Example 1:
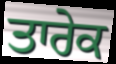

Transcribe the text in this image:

ਤਾਰੇਕ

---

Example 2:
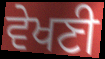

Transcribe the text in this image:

ਵੇਖਣੀ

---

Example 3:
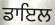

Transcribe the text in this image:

ਡਾਇਲ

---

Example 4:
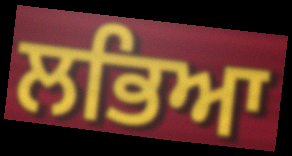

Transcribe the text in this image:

ਲਭਿਆ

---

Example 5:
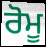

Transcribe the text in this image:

ਰੋਮੂ